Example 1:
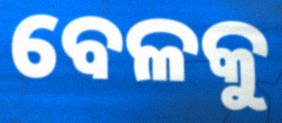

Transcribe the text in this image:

ବେଳକୁ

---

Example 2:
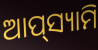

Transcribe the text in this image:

ଆପ୍‌ସ୍ୟାମି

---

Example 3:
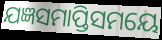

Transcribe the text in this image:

ଯଜ୍ଞସମାପ୍ତିସମୟେ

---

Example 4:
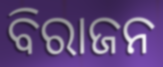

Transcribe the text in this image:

ବିରାଜନ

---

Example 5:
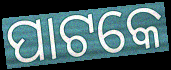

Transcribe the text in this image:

ପାଟକେ